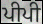
ਪੀਪੀ